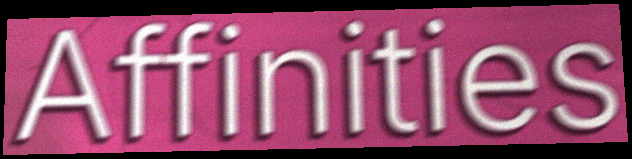
Affinities